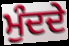
ਮੁੰਦਦੇ